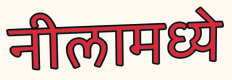
नीलामध्ये